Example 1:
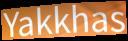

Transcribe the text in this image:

Yakkhas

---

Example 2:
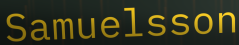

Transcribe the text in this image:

Samuelsson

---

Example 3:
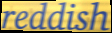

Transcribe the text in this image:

reddish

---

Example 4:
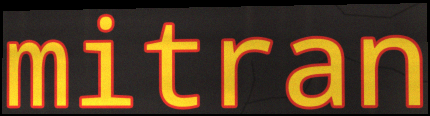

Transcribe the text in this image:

mitran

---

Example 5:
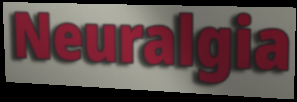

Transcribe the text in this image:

Neuralgia